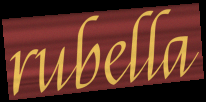
rubella